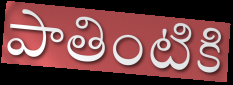
పాతింటికి